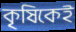
কৃষিকেই